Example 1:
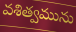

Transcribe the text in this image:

వశిత్వమును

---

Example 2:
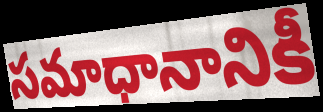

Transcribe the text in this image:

సమాధానానికీ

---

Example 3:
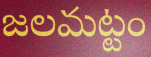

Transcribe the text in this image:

జలమట్టం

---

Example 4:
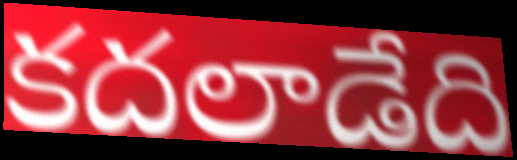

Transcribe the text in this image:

కదలాడేది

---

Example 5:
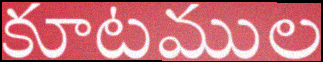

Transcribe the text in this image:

కూటముల